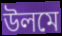
উলমে